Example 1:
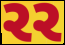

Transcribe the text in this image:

રર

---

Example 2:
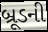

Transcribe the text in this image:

બ્રૂડની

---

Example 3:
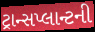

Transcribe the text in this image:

ટ્રાન્સપ્લાન્ટની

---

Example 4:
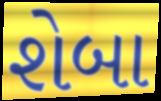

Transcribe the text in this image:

શેબા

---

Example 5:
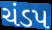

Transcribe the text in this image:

ચંડપ